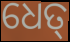
ଧେତ୍